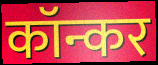
कॉन्कर